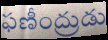
ఫణీంద్రుడు